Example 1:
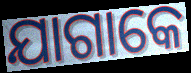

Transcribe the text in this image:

ଯାଗାକେ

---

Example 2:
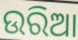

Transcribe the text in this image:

ଉରିଆ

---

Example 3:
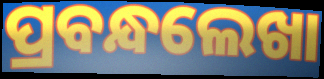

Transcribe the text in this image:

ପ୍ରବନ୍ଧଲେଖା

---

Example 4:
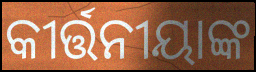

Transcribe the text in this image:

କୀର୍ତ୍ତନୀୟାଙ୍କ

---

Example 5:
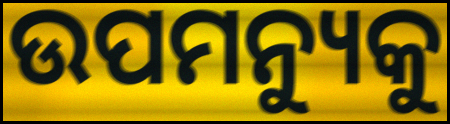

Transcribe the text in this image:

ଉପମନ୍ୟୁକୁ